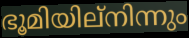
ഭൂമിയില്നിന്നും